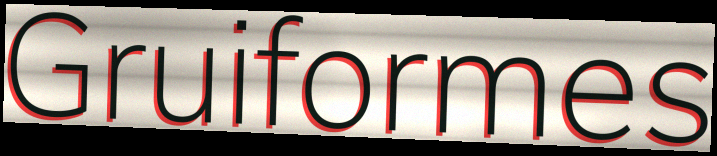
Gruiformes